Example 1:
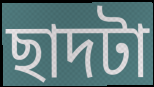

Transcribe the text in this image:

ছাদটা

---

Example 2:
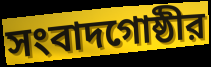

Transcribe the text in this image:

সংবাদগোষ্ঠীর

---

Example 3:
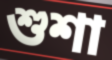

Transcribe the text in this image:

শুশা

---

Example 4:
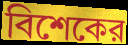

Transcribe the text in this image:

বিশেকের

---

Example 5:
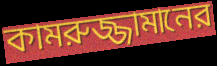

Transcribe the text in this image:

কামরুজ্জামানের